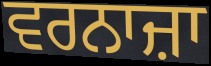
ਵਰਨਾਜ਼ਾ